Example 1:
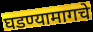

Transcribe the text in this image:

घडण्यामागचे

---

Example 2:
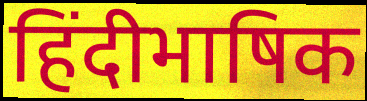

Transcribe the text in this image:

हिंदीभाषिक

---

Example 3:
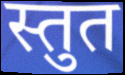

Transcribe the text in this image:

स्तुत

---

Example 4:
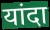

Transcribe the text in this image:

यांदा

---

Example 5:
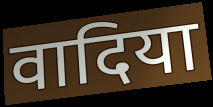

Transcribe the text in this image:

वादिया